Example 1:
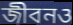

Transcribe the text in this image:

জীবনও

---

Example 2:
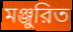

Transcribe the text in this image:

মঞ্জুরিত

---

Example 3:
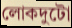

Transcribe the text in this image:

লোকদুটো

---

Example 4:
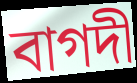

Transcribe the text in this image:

বাগদী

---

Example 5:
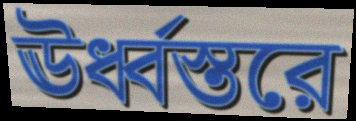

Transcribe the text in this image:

ঊর্ধ্বস্তরে